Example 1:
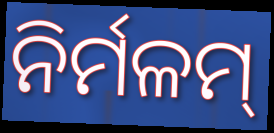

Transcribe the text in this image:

ନିର୍ମଳମ୍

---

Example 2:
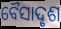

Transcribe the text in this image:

ବୈସାଦୃଶ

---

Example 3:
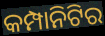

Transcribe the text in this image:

କମ୍ପାନିଟିର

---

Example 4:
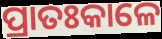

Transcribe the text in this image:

ପ୍ରାତଃକାଳେ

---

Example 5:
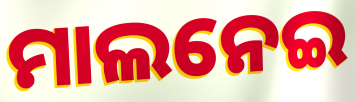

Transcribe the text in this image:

ମାଲନେଇ